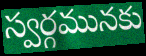
స్వర్గమునకు